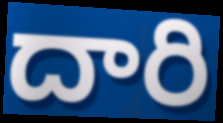
దారి